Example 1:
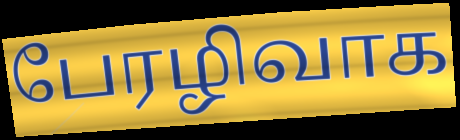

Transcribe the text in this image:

பேரழிவாக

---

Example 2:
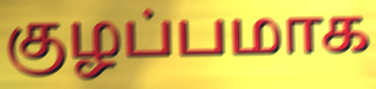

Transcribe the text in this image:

குழப்பமாக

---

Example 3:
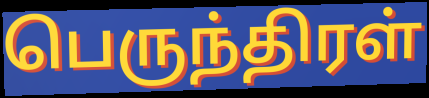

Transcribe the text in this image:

பெருந்திரள்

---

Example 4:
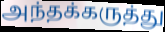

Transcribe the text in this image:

அந்தக்கருத்து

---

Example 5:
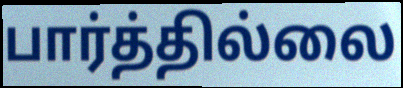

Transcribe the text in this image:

பார்த்தில்லை